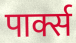
पार्क्स